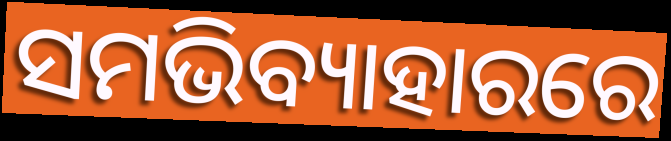
ସମଭିବ୍ୟାହାରରେ